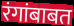
रंगांबाबत